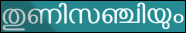
തുണിസഞ്ചിയും